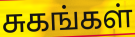
சுகங்கள்